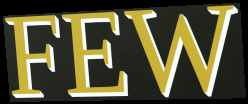
FEW